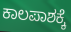
ಕಾಲಪಾಶಕ್ಕೆ